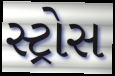
સ્ટ્રોસ